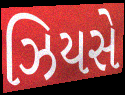
ઝિયસે